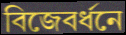
বিজেবর্ধনে